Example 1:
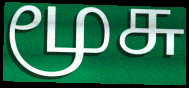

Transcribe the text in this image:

மூசு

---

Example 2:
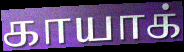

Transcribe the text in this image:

காயாக்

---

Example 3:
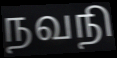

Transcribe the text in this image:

நவநி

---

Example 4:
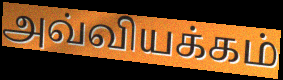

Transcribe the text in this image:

அவ்வியக்கம்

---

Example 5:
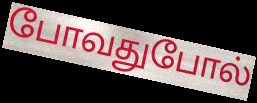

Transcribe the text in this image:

போவதுபோல்